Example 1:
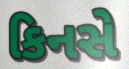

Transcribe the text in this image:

કિનસે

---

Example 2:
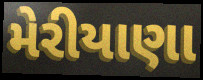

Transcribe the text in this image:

મેરીયાણા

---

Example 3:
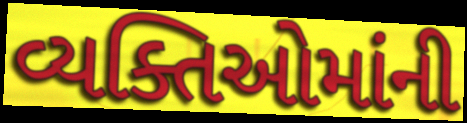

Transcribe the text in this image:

વ્યક્તિઓમાંની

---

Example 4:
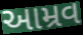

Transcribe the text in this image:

આમ્રવ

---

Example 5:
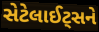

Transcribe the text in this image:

સેટેલાઈટ્સને